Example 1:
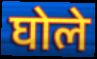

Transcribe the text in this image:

घोले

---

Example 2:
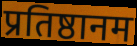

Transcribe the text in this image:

प्रतिष्ठानम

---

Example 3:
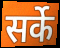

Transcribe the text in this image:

सर्के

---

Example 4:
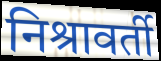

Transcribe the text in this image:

निश्रावर्ती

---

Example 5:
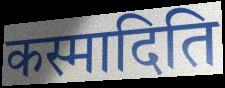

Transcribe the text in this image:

कस्मादिति